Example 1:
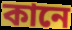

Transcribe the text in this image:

কানে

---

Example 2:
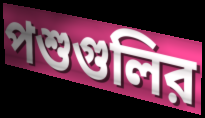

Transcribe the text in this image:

পশুগুলির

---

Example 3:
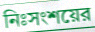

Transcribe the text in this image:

নিঃসংশয়ের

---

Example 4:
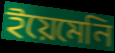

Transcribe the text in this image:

ইয়েমেনি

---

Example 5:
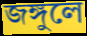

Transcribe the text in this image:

জঙ্গুলে